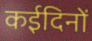
कईदिनों